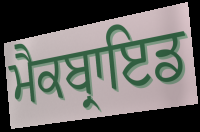
ਮੈਕਬ੍ਰਾਇਡ